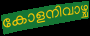
കോളനിവാഴ്ച